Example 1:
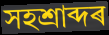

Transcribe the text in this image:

সহশ্ৰাব্দৰ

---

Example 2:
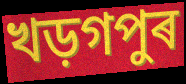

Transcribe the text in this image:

খড়গপুৰ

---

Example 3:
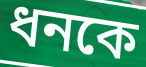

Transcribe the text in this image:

ধনকে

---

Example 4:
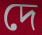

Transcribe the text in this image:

দে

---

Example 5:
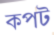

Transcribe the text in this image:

কপট